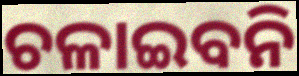
ଚଳାଇବନି